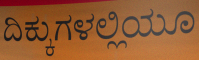
ದಿಕ್ಕುಗಳಲ್ಲಿಯೂ